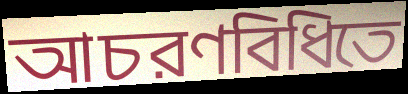
আচরণবিধিতে